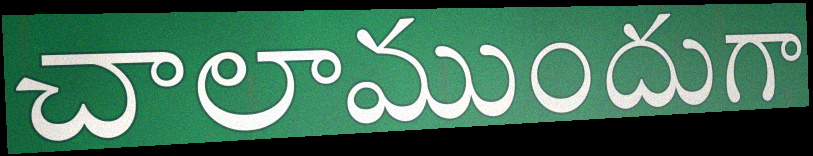
చాలాముందుగా